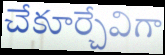
చేకూర్చేవిగా